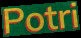
Potri